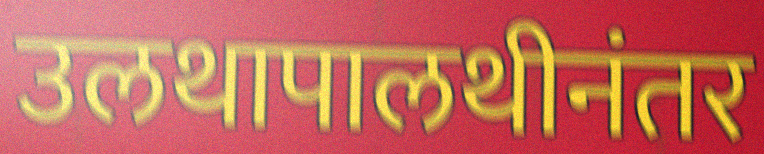
उलथापालथीनंतर